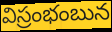
విస్రంభంబున